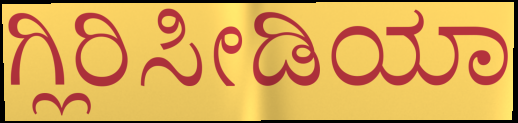
ಗ್ಲಿರಿಸೀಡಿಯಾ